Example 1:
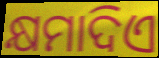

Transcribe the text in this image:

କ୍ଷମାଦିଏ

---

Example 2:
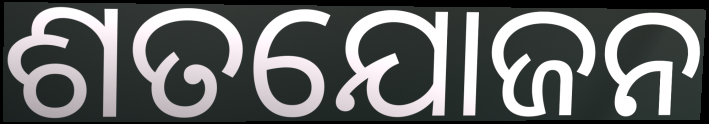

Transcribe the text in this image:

ଶତଯୋଜନ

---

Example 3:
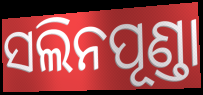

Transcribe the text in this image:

ସଲିନପୂଣ୍ଡା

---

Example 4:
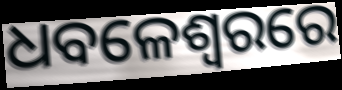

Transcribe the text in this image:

ଧବଳେଶ୍ଵରରେ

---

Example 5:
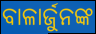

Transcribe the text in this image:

ବାଳାର୍ଜୁନଙ୍କ